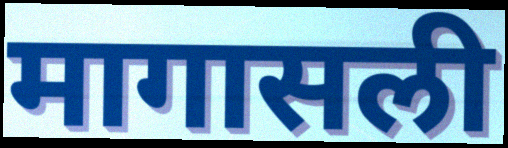
मागासली